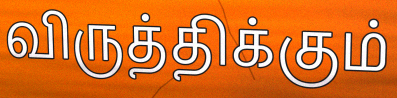
விருத்திக்கும்